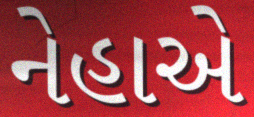
નેહાએ